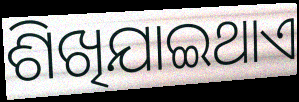
ଶିଖିଯାଇଥାଏ